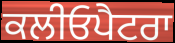
ਕਲੀਓਪੈਟਰਾ